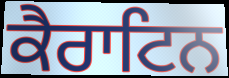
ਕੈਰਾਟਿਨ